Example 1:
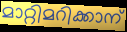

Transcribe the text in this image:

മാറ്റിമറിക്കാന്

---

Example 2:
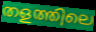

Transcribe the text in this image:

തളത്തിലെ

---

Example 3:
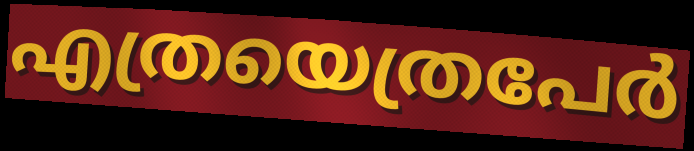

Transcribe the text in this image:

എത്രയെത്രപേർ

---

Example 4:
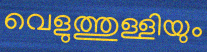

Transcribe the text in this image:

വെളുത്തുള്ളിയും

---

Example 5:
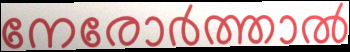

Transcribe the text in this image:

നേരോർത്താൽ